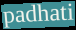
padhati